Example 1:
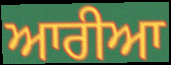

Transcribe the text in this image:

ਆਰੀਆ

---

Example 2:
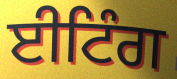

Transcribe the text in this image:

ਈਟਿੰਗ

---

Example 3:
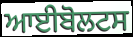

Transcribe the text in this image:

ਆਈਬੋਲਟਸ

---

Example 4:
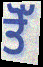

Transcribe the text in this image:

ਤੋੱ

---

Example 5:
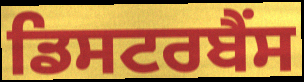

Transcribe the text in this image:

ਡਿਸਟਰਬੈਂਸ